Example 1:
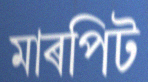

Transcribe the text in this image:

মাৰপিট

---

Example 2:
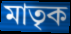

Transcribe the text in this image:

মাতৃক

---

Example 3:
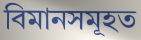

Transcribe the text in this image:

বিমানসমূহত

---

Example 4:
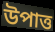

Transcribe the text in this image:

উপাত্ত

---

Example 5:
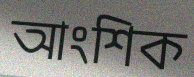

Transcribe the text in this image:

আংশিক